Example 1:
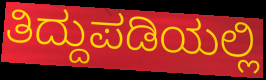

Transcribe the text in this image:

ತಿದ್ದುಪಡಿಯಲ್ಲಿ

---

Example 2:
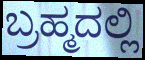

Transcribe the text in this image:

ಬ್ರಹ್ಮದಲ್ಲಿ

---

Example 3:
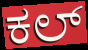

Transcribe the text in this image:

ಕಲ್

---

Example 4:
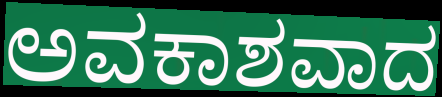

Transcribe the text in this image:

ಅವಕಾಶವಾದ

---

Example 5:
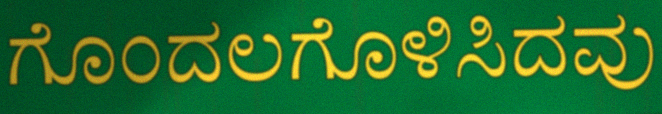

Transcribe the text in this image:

ಗೊಂದಲಗೊಳಿಸಿದವು